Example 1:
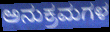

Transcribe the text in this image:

ಅನುಕ್ರಮಗಳ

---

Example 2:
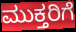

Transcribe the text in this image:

ಮುಕ್ತರಿಗೆ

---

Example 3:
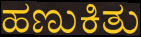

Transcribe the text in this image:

ಹಣುಕಿತು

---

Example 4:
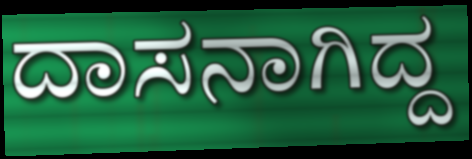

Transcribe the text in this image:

ದಾಸನಾಗಿದ್ದ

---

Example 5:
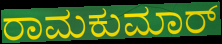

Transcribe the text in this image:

ರಾಮಕುಮಾರ್